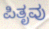
ಪಿತೃವು